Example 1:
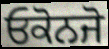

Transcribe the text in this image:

ਓਕੋਨਜੋ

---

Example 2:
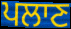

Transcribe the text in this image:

ਪਲਾਣ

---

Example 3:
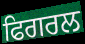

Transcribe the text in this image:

ਫਿਗਰਲ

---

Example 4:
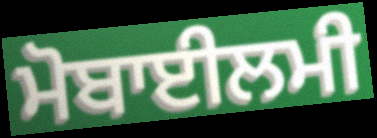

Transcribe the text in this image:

ਮੋਬਾਈਲਮੀ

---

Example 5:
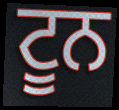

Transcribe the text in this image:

ਟੂਨ